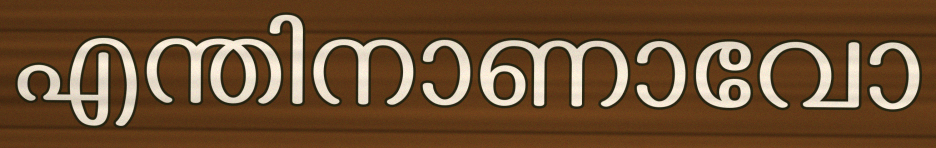
എന്തിനാണാവോ